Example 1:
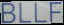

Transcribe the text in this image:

BLLF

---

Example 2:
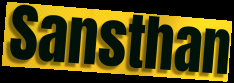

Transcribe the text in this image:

Sansthan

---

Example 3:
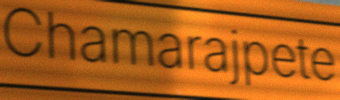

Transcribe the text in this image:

Chamarajpete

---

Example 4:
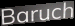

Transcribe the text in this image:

Baruch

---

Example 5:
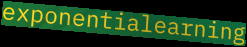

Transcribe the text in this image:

exponentialearning